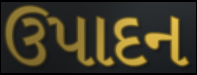
ઉપાદન